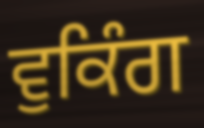
ਵੁਕਿੰਗ